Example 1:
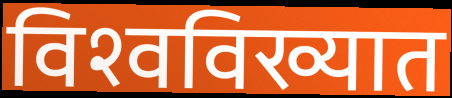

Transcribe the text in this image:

विश्वविख्यात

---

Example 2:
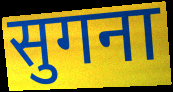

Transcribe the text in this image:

सुगना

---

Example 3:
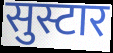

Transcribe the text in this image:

सुस्टार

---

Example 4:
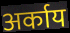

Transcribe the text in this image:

अर्काय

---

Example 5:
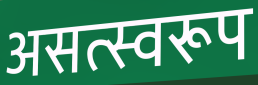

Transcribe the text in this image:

असत्स्वरूप